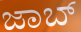
ಜಾಬ್